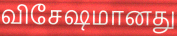
விசேஷமானது